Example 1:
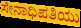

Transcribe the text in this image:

ಸೇನಾಧಿಪತಿಯು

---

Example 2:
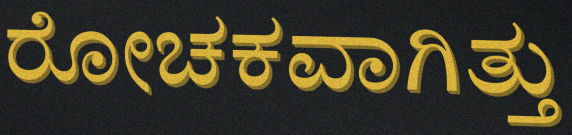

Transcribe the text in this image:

ರೋಚಕವಾಗಿತ್ತು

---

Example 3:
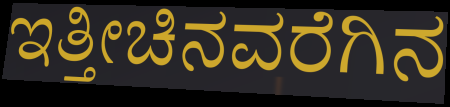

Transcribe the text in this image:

ಇತ್ತೀಚಿನವರೆಗಿನ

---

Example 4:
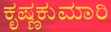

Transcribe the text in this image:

ಕೃಷ್ಣಕುಮಾರಿ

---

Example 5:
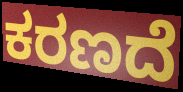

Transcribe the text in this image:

ಕರಣದೆ